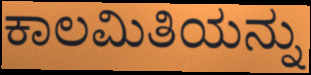
ಕಾಲಮಿತಿಯನ್ನು